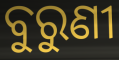
ବୁରୁଣୀ